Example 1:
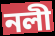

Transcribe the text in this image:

নলী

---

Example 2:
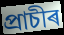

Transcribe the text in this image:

প্ৰাচীৰ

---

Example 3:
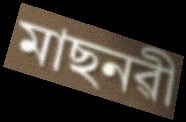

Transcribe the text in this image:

মাছনৱী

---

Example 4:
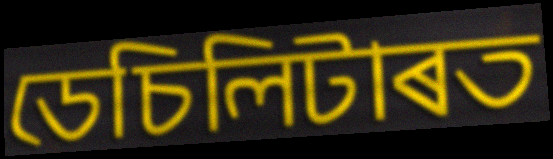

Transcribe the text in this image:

ডেচিলিটাৰত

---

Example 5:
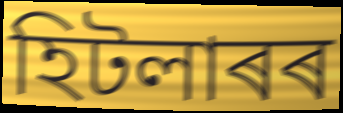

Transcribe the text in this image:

হিটলাৰৰ